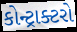
કોન્ટ્રાક્ટરો